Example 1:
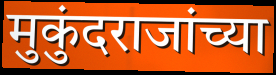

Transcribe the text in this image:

मुकुंदराजांच्या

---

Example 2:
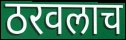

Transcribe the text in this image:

ठरवलाच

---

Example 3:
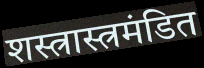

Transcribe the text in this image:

शस्त्रास्त्रमंडित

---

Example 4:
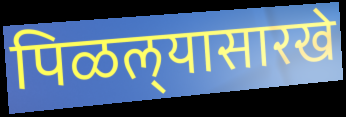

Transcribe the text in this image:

पिळल्यासारखे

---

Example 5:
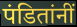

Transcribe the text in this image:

पंडितांनीं